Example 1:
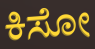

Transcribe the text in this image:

ಕಿಸೋ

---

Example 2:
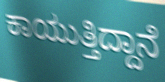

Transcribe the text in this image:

ಕಾಯುತ್ತಿದ್ದಾನೆ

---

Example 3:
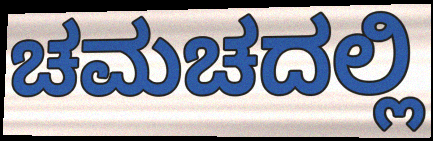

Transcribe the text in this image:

ಚಮಚದಲ್ಲಿ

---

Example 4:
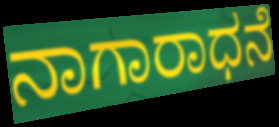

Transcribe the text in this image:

ನಾಗಾರಾಧನೆ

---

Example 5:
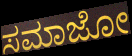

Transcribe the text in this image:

ಸಮಾಜೋ